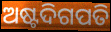
ଅଷ୍ଟଦିଗପତି